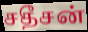
சதீசன்